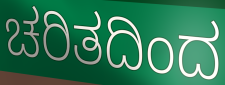
ಚರಿತದಿಂದ